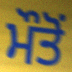
ਮੌਤੋਂ